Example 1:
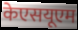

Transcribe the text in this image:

केएसयूएम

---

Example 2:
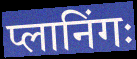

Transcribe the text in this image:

प्लानिंगः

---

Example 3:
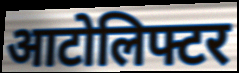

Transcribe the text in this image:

आटोलिफ्टर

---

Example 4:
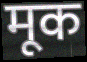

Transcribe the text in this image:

मूक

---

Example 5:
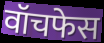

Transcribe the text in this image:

वॉचफेस